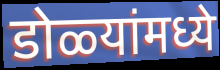
डोळ्यांमध्ये